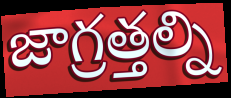
జాగ్రత్తల్ని